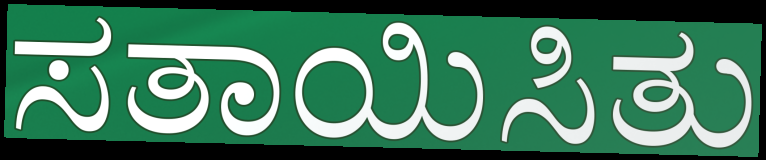
ಸತಾಯಿಸಿತು